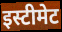
इस्टीमेट